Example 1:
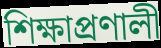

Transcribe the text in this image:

শিক্ষাপ্রণালী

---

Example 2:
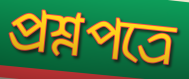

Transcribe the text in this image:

প্রশ্নপত্রে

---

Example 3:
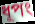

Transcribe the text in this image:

ধূপং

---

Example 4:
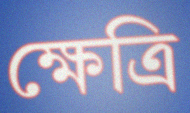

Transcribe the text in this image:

ক্ষেত্রি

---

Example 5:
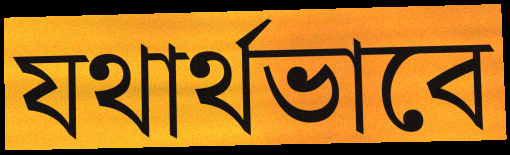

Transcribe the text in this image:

যথার্থভাবে